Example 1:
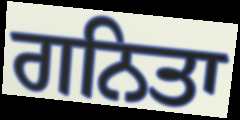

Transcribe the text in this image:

ਗਨਿਤਾ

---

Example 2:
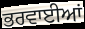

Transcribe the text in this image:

ਭਰਵਾਈਆਂ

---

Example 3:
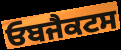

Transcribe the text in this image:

ਓਬਜੈਕਟਸ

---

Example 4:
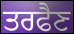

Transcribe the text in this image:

ਤਰਫੈਣ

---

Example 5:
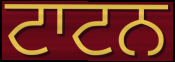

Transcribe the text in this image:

ਟਾਟਨ